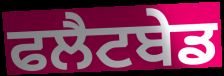
ਫਲੈਟਬੇਡ